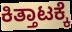
ಕಿತ್ತಾಟಕ್ಕೆ